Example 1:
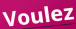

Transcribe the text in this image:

Voulez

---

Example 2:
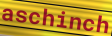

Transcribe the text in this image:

aschinch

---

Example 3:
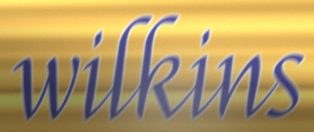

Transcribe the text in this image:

wilkins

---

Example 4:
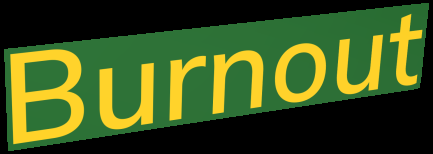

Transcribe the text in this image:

Burnout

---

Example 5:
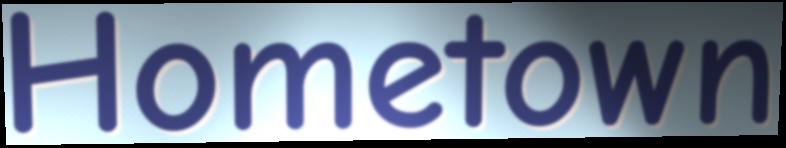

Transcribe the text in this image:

Hometown